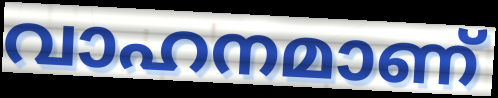
വാഹനമാണ്